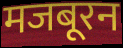
मजबूरन